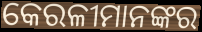
କେରଳୀମାନଙ୍କର